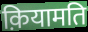
क़ियामति